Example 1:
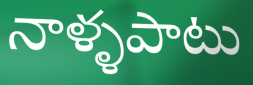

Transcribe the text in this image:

నాళ్ళపాటు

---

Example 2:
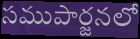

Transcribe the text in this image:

సముపార్జనలో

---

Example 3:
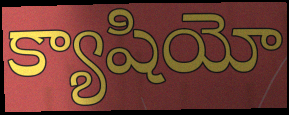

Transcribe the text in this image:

క్యాషియో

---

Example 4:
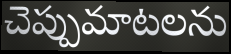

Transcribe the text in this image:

చెప్పుమాటలను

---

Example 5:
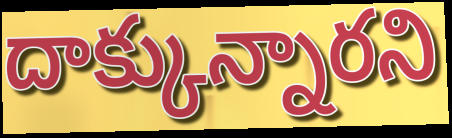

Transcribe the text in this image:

దాక్కున్నారని